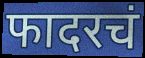
फादरचं